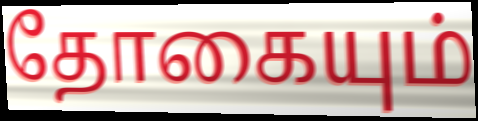
தோகையும்